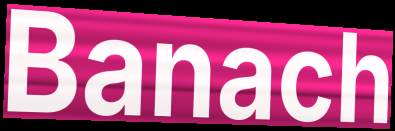
Banach